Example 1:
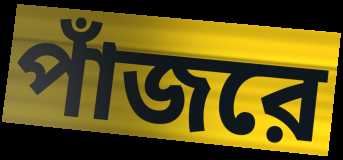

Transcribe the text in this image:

পাঁজরে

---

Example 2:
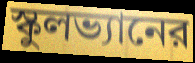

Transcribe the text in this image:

স্কুলভ্যানের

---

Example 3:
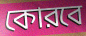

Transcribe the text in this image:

কোরবে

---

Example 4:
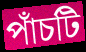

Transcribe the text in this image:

পাঁচটি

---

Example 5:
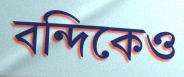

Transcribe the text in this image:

বন্দিকেও